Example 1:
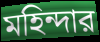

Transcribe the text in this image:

মহিন্দার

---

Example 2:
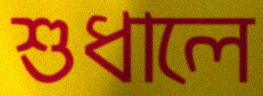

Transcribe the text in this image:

শুধালে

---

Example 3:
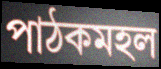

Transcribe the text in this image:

পাঠকমহল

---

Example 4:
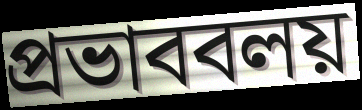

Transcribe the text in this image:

প্রভাববলয়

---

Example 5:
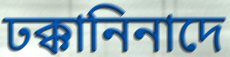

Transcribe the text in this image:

ঢক্কানিনাদে